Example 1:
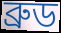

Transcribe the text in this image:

ব্রুড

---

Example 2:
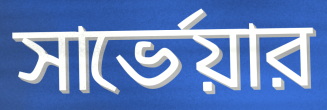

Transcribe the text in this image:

সার্ভেয়ার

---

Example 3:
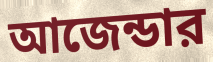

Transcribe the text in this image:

আজেন্ডার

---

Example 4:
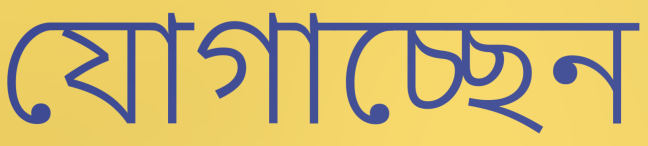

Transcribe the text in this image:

যোগাচ্ছেন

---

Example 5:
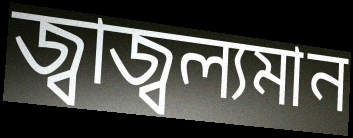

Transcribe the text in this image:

জ্বাজ্বল্যমান